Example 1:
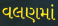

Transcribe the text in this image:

વલણમાં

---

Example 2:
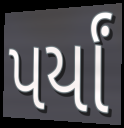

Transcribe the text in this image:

પર્યાં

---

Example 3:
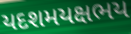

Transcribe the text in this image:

યદશમયક્ષભય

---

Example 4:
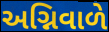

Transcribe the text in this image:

અગ્નિવાળે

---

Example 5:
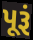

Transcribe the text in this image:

પૂરૂં